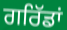
ਗਰਿੱਡਾਂ